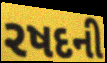
રષદની